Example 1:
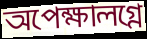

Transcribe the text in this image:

অপেক্ষালগ্নে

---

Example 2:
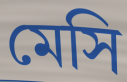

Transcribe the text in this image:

মেসি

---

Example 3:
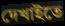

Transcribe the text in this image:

দেখাইতে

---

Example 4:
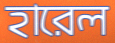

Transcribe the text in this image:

হারেল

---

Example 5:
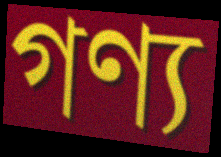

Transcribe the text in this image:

গণ্য